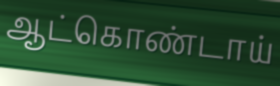
ஆட்கொண்டாய்